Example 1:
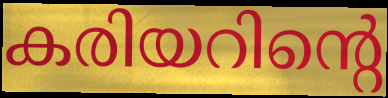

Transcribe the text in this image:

കരിയറിന്റെ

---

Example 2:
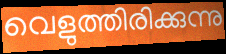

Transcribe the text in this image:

വെളുത്തിരിക്കുന്നു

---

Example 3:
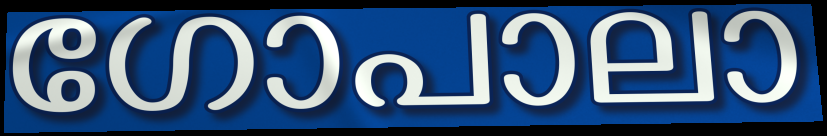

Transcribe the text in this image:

ഗോപാലാ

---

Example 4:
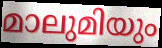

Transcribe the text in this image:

മാലുമിയും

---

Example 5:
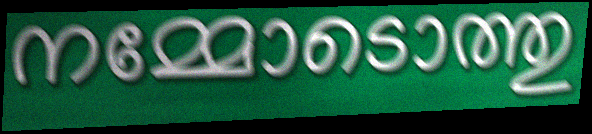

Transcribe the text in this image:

നമ്മോടൊത്തു